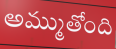
అమ్ముతోంది